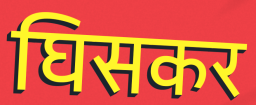
घिसकर